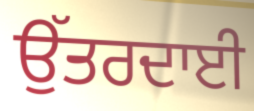
ਉੱਤਰਦਾਈ